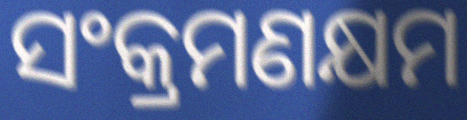
ସଂକ୍ରମଣକ୍ଷମ